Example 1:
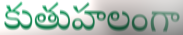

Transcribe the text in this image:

కుతుహలంగా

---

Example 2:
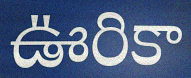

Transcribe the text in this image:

ఊరికా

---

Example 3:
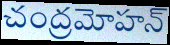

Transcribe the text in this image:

చంద్రమోహన్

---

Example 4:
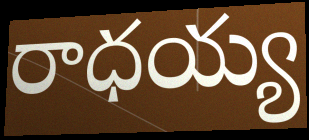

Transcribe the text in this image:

రాధయ్య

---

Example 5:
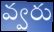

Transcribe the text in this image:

వ్వరు